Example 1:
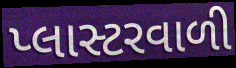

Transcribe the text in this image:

પ્લાસ્ટરવાળી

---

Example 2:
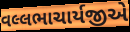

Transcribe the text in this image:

વલ્લભાચાર્યજીએ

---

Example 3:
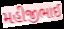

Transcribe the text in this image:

મહીજીભાઈ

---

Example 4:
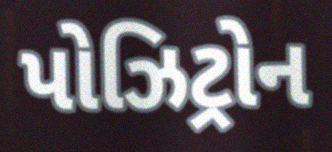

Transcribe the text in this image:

પોઝિટ્રોન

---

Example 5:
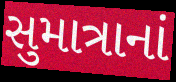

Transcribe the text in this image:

સુમાત્રાનાં